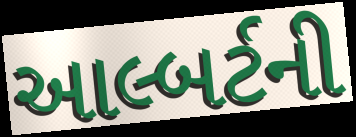
આલ્બર્ટની